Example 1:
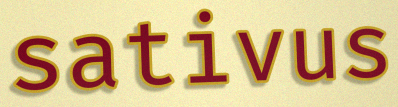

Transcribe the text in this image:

sativus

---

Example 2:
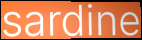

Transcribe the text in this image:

sardine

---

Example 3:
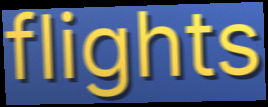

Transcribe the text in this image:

flights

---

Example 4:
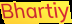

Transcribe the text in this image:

Bhartiy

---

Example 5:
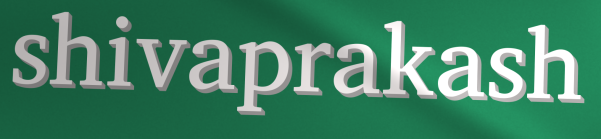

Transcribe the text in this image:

shivaprakash